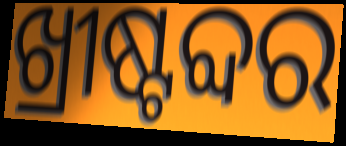
ଖ୍ରୀଷ୍ଟବ୍ଦର